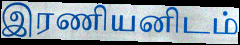
இரணியனிடம்